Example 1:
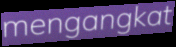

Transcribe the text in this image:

mengangkat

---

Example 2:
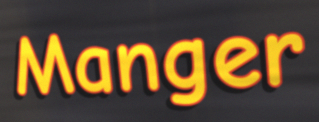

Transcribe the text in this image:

Manger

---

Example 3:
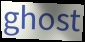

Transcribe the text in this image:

ghost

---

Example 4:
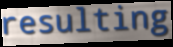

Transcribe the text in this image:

resulting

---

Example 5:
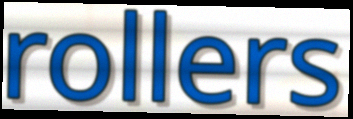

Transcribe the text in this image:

rollers